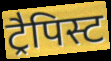
ट्रैपिस्ट